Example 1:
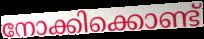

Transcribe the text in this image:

നോക്കിക്കൊണ്ട്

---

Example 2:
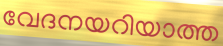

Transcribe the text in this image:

വേദനയറിയാത്ത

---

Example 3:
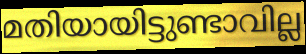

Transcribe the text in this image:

മതിയായിട്ടുണ്ടാവില്ല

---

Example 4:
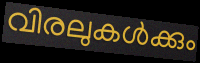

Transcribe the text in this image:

വിരലുകൾക്കും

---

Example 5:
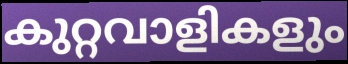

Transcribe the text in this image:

കുറ്റവാളികളും